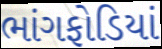
ભાંગફોડિયાં